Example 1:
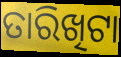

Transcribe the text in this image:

ତାରିଖିଟା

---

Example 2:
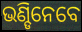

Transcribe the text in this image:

ଭଣ୍ଡିନେବେ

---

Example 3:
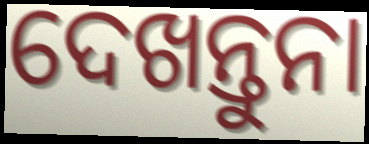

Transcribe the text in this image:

ଦେଖନ୍ତୁନା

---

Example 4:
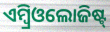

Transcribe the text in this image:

ଏମ୍ବ୍ରିଓଲୋଜିଷ୍ଟ୍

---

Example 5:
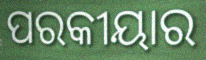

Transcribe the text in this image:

ପରକୀୟାର